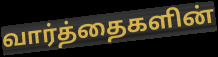
வார்த்தைகளின்